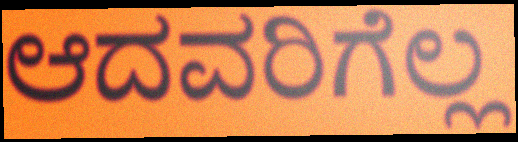
ಆದವರಿಗೆಲ್ಲ